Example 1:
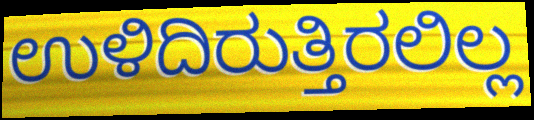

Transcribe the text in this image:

ಉಳಿದಿರುತ್ತಿರಲಿಲ್ಲ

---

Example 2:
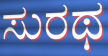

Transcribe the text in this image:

ಸುರಥ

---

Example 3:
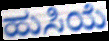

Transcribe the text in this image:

ಹುಸಿಯೆ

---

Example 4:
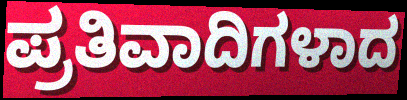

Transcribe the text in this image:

ಪ್ರತಿವಾದಿಗಳಾದ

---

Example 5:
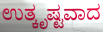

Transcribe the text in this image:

ಉತ್ಕೃಷ್ಟವಾದ